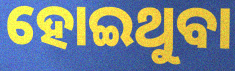
ହୋଇଥୁବା